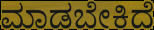
ಮಾಡಬೇಕಿದೆ